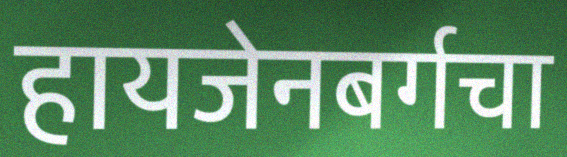
हायजेनबर्गचा